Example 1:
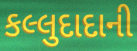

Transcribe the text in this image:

કલ્લુદાદાની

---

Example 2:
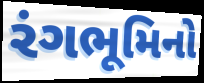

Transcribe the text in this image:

રંગભૂમિનો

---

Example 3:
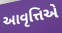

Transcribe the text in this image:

આવૃત્તિએ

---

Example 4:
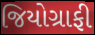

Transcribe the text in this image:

જિયોગ્રાફી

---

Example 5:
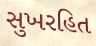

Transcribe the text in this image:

સુખરહિત